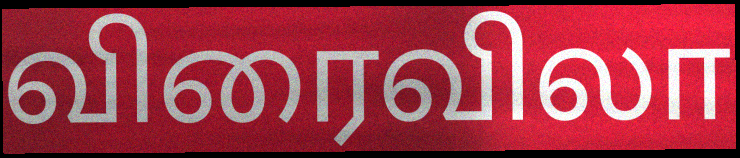
விரைவிலா